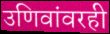
उणिवांवरही